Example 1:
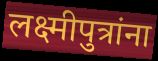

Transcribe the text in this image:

लक्ष्मीपुत्रांना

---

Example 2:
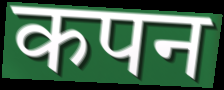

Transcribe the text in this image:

कपन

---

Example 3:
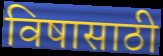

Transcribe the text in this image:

विषासाठी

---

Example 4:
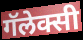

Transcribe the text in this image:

गॅलेक्सी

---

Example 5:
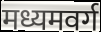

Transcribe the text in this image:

मध्यमवर्ग